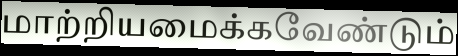
மாற்றியமைக்கவேண்டும்